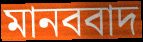
মানববাদ